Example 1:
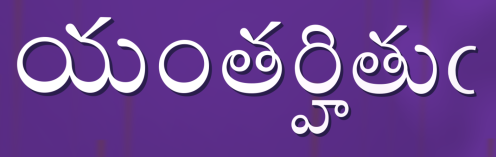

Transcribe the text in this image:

యంతర్హితుఁ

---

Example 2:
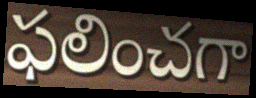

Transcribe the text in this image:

ఫలించగా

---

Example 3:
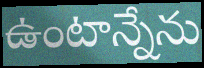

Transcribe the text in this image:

ఉంటాన్నేను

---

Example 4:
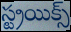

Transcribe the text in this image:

స్ట్రయిక్స్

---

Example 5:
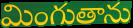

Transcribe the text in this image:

మింగుతాను